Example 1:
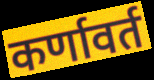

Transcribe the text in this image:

कर्णावर्त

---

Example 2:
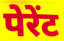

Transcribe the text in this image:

पेरेंट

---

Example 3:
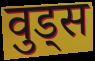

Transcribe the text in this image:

वुड्स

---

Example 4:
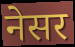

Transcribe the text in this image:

नेसर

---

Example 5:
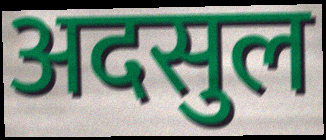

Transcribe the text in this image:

अदसुल